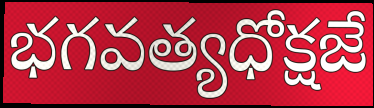
భగవత్యధోక్షజే